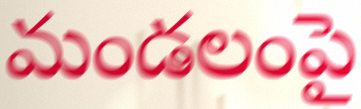
మండలంపై